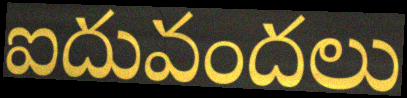
ఐదువందలు